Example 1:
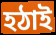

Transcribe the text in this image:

হঠাই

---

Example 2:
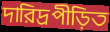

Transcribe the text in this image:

দারিদ্রপীড়িত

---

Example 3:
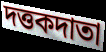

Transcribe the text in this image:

দত্তকদাতা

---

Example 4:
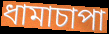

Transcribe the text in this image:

ধামাচাপা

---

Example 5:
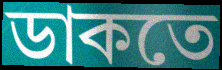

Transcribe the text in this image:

ডাকতে